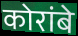
कोरांबे